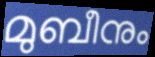
മുബീനും